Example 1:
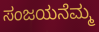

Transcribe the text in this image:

ಸಂಜಯನೆಮ್ಮ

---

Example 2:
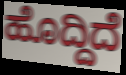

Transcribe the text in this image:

ಹೊದ್ದಿದೆ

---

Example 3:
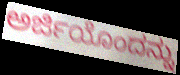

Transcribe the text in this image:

ಅರ್ಜಿಯೊಂದನ್ನು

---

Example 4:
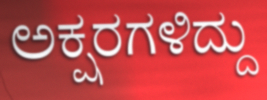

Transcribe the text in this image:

ಅಕ್ಷರಗಳಿದ್ದು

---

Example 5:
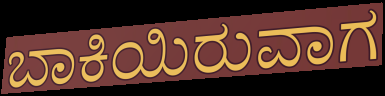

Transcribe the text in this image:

ಬಾಕಿಯಿರುವಾಗ